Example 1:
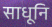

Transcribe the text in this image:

साधूनि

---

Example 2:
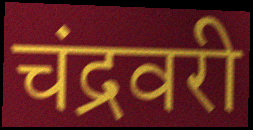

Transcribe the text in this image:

चंद्रवरी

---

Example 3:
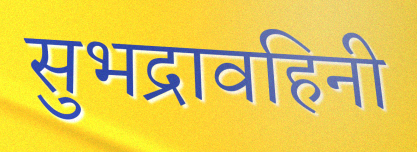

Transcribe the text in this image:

सुभद्रावहिनी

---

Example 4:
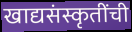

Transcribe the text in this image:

खाद्यसंस्कृतींची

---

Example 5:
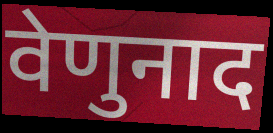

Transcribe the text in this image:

वेणुनाद